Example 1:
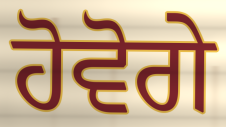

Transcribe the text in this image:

ਹੋਵੋਗੇ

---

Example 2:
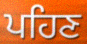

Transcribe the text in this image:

ਪਹਿਣ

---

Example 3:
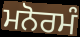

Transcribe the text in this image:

ਮਨੋਰਮੰ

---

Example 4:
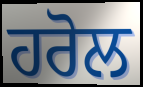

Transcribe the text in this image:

ਹਰੋਲ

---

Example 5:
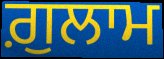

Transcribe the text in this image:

ਗ਼ੁਲਾਮ